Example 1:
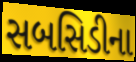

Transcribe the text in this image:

સબસિડીના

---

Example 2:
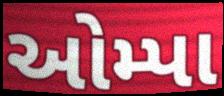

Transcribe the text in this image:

ઓમ્પા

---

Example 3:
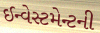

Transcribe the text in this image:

ઈન્વેસ્ટમેન્ટની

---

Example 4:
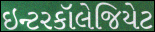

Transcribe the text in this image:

ઇન્ટરકૉલેજિયેટ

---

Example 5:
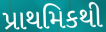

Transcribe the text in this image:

પ્રાથમિકથી